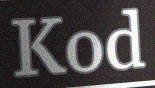
Kod